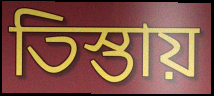
তিস্তায়